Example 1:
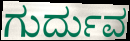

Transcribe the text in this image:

ಗುರ್ದುವ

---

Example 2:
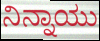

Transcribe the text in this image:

ನಿನ್ನಾಯು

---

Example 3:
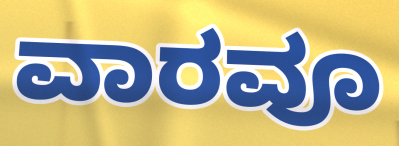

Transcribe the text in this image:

ವಾರವೂ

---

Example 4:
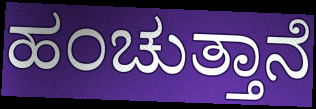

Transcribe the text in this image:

ಹಂಚುತ್ತಾನೆ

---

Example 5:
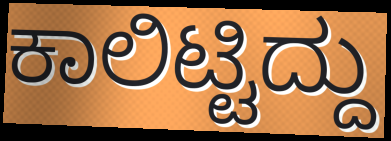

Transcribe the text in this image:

ಕಾಲಿಟ್ಟಿದ್ದು